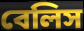
বেলিস